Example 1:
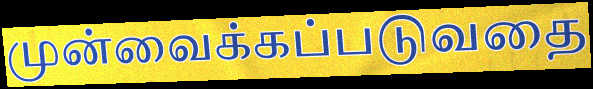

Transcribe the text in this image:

முன்வைக்கப்படுவதை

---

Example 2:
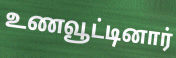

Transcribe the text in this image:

உணவூட்டினார்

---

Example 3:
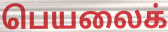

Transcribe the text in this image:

பெயலைக்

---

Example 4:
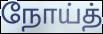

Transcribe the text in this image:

நோய்த்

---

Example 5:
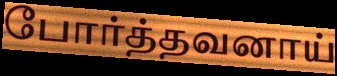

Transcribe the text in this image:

போர்த்தவனாய்